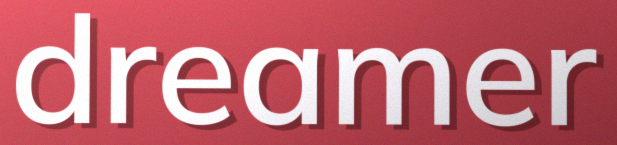
dreamer